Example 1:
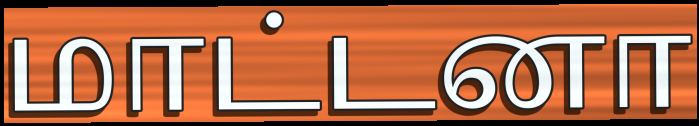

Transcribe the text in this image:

மாட்டனா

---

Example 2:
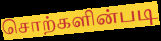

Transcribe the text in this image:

சொற்களின்படி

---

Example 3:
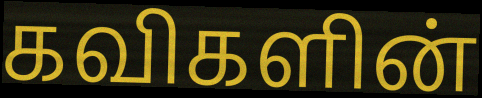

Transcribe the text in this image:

கவிகளின்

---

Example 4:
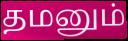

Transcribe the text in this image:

தமனும்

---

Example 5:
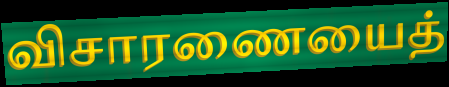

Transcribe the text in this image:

விசாரணையைத்